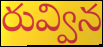
రువ్విన